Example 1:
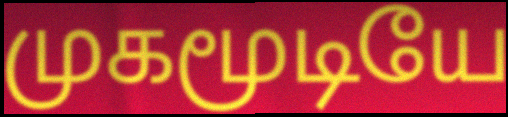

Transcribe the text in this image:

முகமூடியே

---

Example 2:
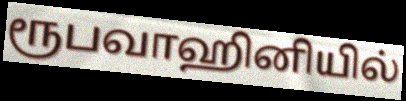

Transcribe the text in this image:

ரூபவாஹினியில்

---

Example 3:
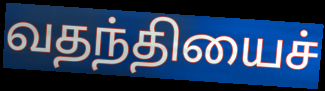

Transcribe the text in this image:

வதந்தியைச்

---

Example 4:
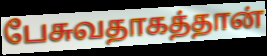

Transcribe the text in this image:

பேசுவதாகத்தான்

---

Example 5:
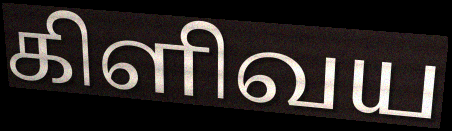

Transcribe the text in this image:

கிளிவய